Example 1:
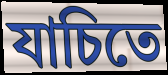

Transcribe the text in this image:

যাচিতে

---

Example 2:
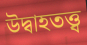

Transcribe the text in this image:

উদ্বাহতত্ত্ব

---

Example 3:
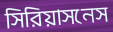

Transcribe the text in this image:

সিরিয়াসনেস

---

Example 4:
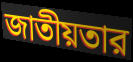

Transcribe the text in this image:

জাতীয়তার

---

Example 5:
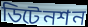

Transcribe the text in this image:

ডিটেনশন